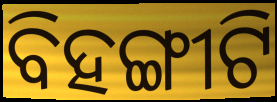
ବିହଙ୍ଗୀଟି